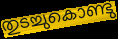
തുടച്ചുകൊണ്ടു